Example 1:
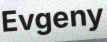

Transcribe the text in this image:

Evgeny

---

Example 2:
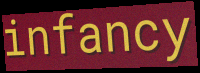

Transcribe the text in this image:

infancy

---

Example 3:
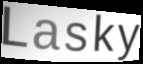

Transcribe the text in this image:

Lasky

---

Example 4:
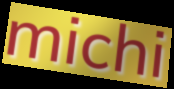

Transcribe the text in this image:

michi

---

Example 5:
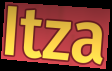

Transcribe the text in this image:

Itza